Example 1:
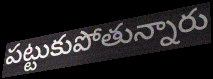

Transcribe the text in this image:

పట్టుకుపోతున్నారు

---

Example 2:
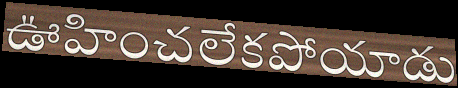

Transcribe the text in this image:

ఊహించలేకపోయాడు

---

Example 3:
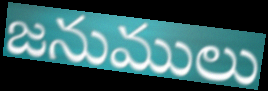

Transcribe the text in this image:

జనుములు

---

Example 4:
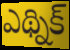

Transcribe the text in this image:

ఎథ్నిక్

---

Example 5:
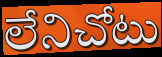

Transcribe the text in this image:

లేనిచోటు